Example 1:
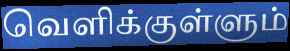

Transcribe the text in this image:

வெளிக்குள்ளும்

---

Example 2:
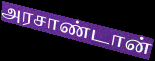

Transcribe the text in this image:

அரசாண்டான்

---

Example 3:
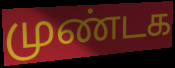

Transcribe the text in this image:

முண்டக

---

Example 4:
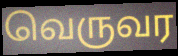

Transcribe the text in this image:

வெருவர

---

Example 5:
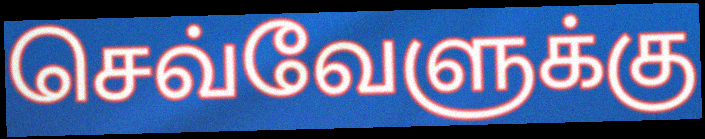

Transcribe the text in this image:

செவ்வேளுக்கு